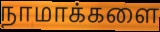
நாமாக்களை